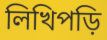
লিখিপড়ি